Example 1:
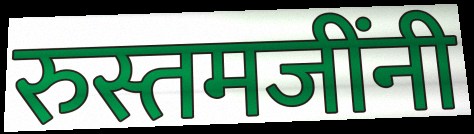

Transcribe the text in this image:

रुस्तमजींनी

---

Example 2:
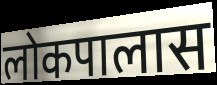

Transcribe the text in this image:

लोकपालास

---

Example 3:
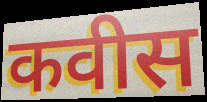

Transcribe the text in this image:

कवीस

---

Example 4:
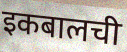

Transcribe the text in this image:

इकबालची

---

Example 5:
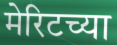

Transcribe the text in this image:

मेरिटच्या